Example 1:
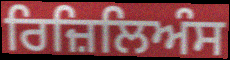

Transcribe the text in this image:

ਰਿਜ਼ਿਲਿਅੰਸ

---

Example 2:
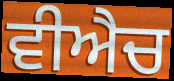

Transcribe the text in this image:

ਵੀਐਚ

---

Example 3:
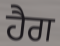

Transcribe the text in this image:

ਹੈਗ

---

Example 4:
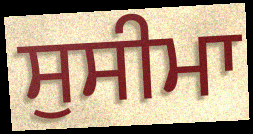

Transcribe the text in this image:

ਸੁਸੀਮਾ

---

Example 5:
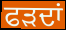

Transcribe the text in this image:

ਫੜਦਾਂ